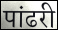
पांढरी